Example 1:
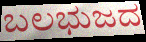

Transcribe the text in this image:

ಬಲಭುಜದ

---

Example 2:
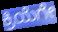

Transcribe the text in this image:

ಕ್ರಿಯೆಗೇ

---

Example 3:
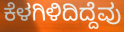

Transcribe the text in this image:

ಕೆಳಗಿಳಿದಿದ್ದೆವು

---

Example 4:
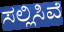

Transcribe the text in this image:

ಸಲ್ಲಿಸಿವೆ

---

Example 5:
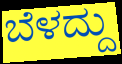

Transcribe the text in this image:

ಬೆಳದ್ದು